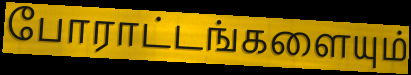
போராட்டங்களையும்